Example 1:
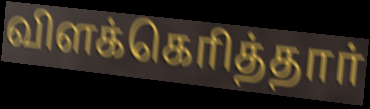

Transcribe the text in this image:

விளக்கெரித்தார்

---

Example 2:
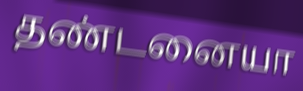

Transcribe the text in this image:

தண்டனையா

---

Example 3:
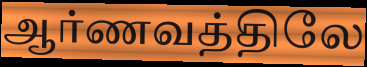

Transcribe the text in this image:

ஆர்ணவத்திலே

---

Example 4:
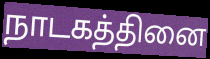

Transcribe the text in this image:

நாடகத்தினை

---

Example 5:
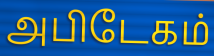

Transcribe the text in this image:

அபிடேகம்